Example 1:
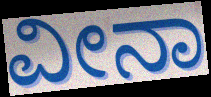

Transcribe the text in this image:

ವೀನಾ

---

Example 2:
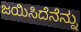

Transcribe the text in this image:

ಜಯಿಸಿದೆನೆನ್ನು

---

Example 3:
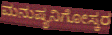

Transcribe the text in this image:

ಮನುಷ್ಯನಿಗೋಸ್ಕರ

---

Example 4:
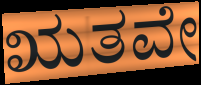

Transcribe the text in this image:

ಋತವೇ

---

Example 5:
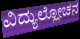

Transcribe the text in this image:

ವಿದ್ಯುಲ್ಲೋಚನ